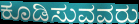
ಕೂಡಿಸುವವರು